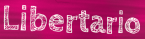
Libertario